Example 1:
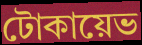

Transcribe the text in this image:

টোকায়েভ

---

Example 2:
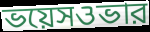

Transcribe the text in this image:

ভয়েসওভার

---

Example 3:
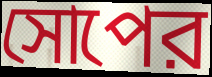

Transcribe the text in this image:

সোপের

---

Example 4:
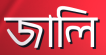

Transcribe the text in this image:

জালি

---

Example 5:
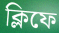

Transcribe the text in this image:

ক্লিফে